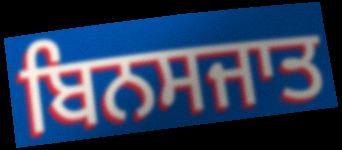
ਬਿਨਸਜਾਤ